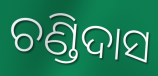
ଚଣ୍ଡିଦାସ